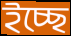
ইচ্ছে